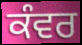
ਕੰਵਰ